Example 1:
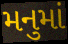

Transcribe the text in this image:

મનુમાં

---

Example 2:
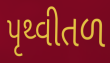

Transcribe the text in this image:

પૃથ્વીતળ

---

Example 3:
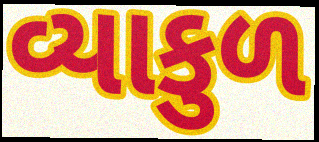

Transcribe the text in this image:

વ્યાકુળ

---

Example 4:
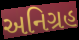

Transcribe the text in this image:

અનિગ્રહ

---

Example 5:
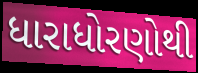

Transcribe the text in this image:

ધારાધોરણોથી